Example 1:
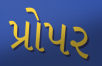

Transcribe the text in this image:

પ્રોપર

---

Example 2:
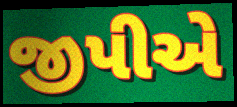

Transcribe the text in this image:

જીપીએ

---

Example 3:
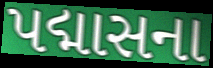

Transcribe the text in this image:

પદ્માસના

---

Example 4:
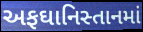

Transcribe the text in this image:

અફઘાનિસ્તાનમાં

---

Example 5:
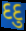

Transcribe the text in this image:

દદુ